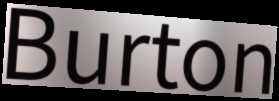
Burton